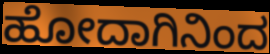
ಹೋದಾಗಿನಿಂದ